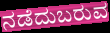
ನಡೆದುಬರುವ